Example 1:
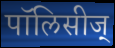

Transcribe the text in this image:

पॉलिसीज्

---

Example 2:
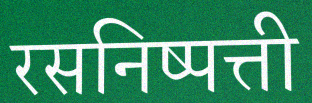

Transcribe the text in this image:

रसनिष्पत्ती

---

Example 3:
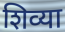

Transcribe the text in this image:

शिव्या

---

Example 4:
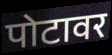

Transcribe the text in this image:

पोटावर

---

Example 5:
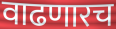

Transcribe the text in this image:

वाढणारच